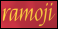
ramoji